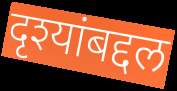
दृश्यांबद्दल